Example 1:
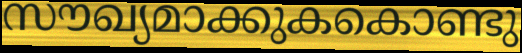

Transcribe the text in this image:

സൗഖ്യമാക്കുകകൊണ്ടു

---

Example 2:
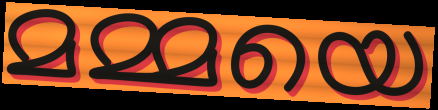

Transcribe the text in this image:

മമ്മയെ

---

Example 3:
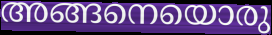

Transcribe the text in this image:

അങ്ങനെയൊരു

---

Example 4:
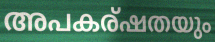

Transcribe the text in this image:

അപകര്ഷതയും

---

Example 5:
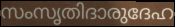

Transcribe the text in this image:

സംസൃതിദാരുദേഹ